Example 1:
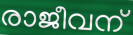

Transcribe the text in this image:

രാജീവന്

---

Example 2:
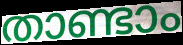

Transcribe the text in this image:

താണ്ടാം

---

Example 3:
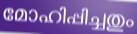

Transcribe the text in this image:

മോഹിപ്പിച്ചതും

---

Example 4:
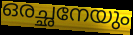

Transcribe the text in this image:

ഒരച്ഛനേയും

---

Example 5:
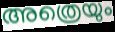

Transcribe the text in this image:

അത്രെയും